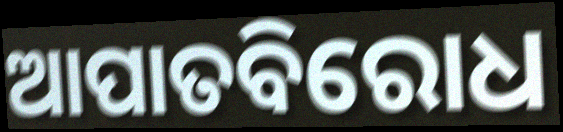
ଆପାତବିରୋଧ